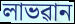
লাভৱান